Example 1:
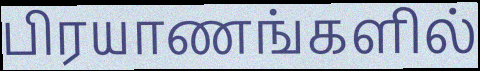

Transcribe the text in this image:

பிரயாணங்களில்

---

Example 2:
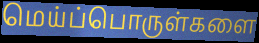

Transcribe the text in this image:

மெய்ப்பொருள்களை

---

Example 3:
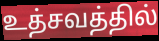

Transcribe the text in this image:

உத்சவத்தில்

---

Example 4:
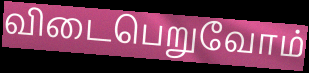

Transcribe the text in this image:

விடைபெறுவோம்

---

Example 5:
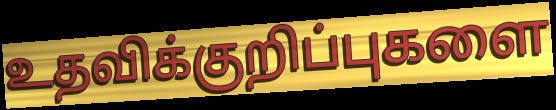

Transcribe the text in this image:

உதவிக்குறிப்புகளை